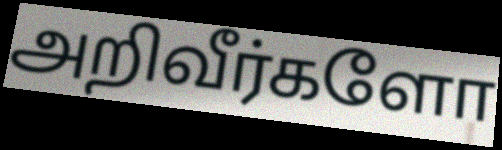
அறிவீர்களோ